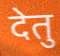
देतु